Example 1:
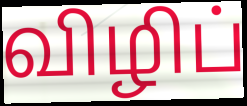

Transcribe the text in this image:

விழிப்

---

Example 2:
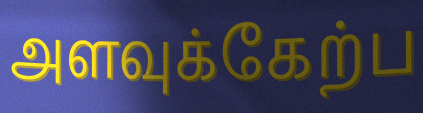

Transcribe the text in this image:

அளவுக்கேற்ப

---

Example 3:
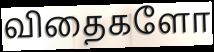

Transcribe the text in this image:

விதைகளோ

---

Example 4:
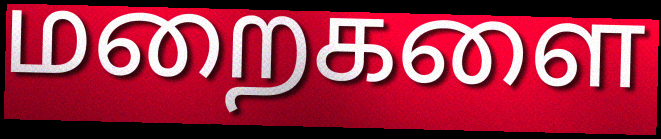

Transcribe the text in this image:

மறைகளை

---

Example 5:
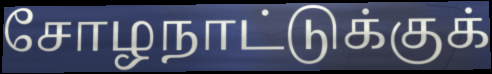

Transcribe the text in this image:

சோழநாட்டுக்குக்